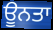
ਊਨਤਾ